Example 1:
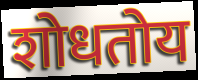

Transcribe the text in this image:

शोधतोय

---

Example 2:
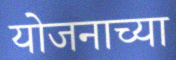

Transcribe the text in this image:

योजनाच्या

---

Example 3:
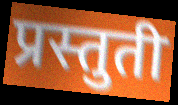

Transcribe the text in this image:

प्रस्तुती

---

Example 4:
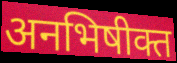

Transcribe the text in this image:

अनभिषीक्त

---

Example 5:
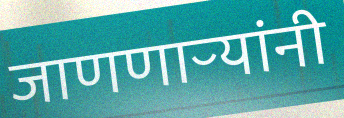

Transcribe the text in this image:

जाणणाऱ्यांनी